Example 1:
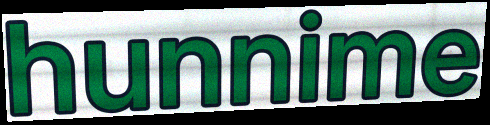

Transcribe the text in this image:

hunnime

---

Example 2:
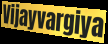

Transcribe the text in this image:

Vijayvargiya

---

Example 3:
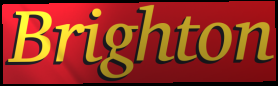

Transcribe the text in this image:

Brighton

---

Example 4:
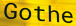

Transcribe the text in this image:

Gothe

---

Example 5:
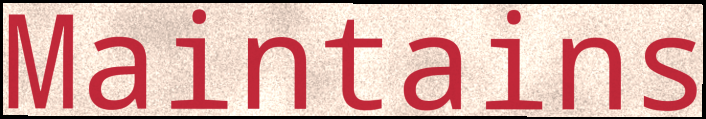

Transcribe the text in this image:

Maintains